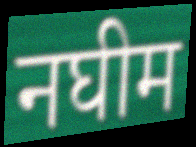
नघीम